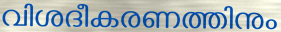
വിശദീകരണത്തിനും